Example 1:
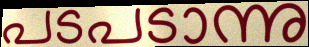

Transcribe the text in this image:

പടപടാന്നു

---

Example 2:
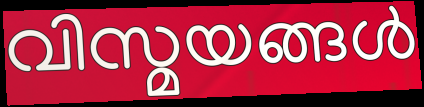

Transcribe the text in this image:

വിസ്മയങ്ങൾ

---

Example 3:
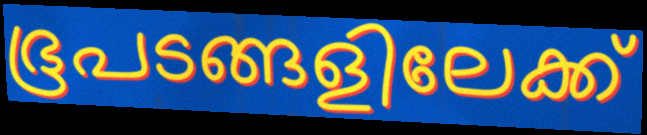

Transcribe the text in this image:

ഭൂപടങ്ങളിലേക്ക്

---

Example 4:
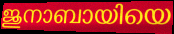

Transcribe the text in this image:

ജുനാബായിയെ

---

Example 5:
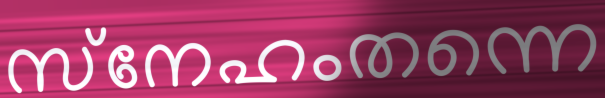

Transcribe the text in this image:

സ്‌നേഹംതന്നെ